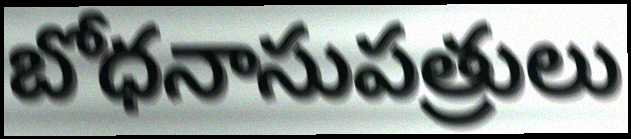
బోధనాసుపత్రులు